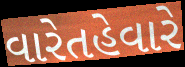
વારેતહેવારે